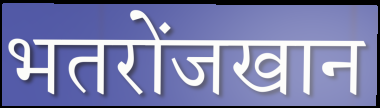
भतरोंजखान